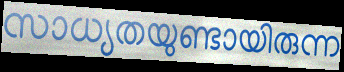
സാധ്യതയുണ്ടായിരുന്ന